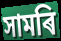
সামৰি